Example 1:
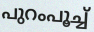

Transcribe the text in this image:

പുറംപൂച്ച്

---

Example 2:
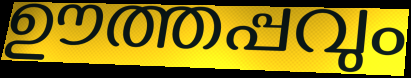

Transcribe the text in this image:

ഊത്തപ്പവും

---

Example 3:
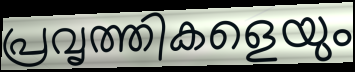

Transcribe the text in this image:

പ്രവൃത്തികളെയും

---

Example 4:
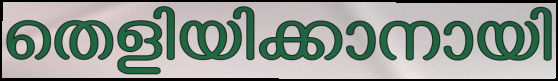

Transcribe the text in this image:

തെളിയിക്കാനായി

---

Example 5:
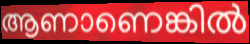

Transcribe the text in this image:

ആണാണെങ്കിൽ